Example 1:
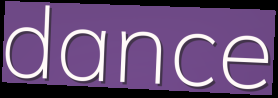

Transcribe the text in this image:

dance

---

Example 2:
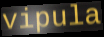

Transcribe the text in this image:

vipula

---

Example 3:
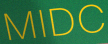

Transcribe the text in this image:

MIDC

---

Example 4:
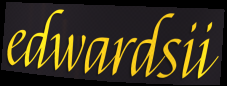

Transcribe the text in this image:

edwardsii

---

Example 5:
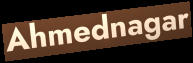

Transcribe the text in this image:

Ahmednagar